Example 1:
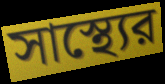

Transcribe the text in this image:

সাস্থ্যের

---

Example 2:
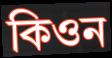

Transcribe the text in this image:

কিওন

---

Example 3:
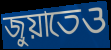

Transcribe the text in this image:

জুয়াতেও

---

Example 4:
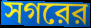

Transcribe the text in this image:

সগরের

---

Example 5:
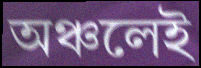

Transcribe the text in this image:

অঞ্চলেই